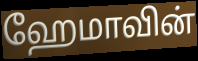
ஹேமாவின்